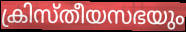
ക്രിസ്തീയസഭയും